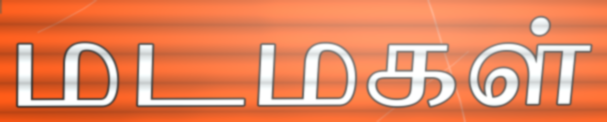
மடமகள்